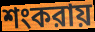
শংকরায়